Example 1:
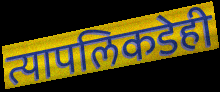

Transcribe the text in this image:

त्यापलिकडेही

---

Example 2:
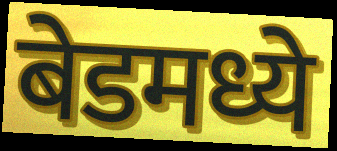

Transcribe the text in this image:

बेडमध्ये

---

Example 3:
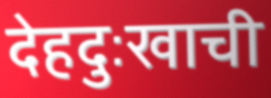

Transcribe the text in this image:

देहदुःखाची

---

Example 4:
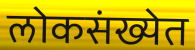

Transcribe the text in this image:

लोकसंख्येत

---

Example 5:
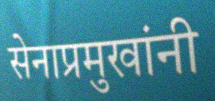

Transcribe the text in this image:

सेनाप्रमुखांनी